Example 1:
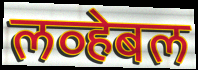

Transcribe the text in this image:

लव्हेबल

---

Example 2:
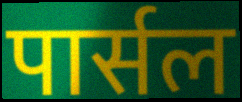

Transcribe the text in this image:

पार्सल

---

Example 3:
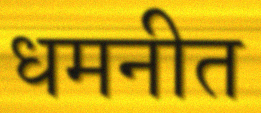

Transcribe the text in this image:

धमनीत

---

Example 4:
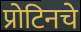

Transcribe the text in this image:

प्रोटिनचे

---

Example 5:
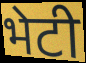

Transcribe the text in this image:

भेटी